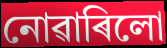
নোৱাৰিলো